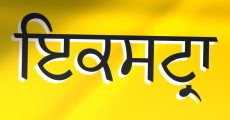
ਇਕਸਟ੍ਰਾ